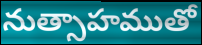
నుత్సాహముతో